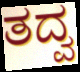
ತದ್ವ